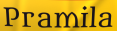
Pramila